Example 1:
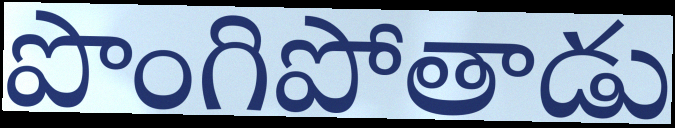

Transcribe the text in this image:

పొంగిపోతాడు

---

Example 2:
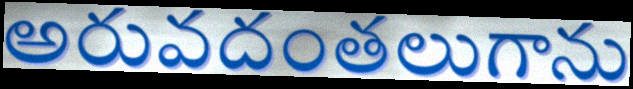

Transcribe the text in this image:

అరువదంతలుగాను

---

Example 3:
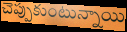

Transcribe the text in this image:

చెప్పుకుంటున్నాయి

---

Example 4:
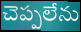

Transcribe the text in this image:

చెప్పలేను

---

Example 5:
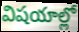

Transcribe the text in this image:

విషయాల్లో